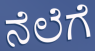
ನೆಲೆಗೆ